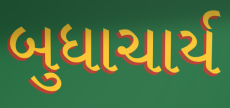
બુધાચાર્ય